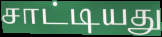
சாட்டியது